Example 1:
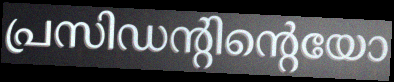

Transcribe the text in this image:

പ്രസിഡന്റിന്റെയോ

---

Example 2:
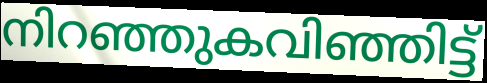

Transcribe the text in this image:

നിറഞ്ഞുകവിഞ്ഞിട്ട്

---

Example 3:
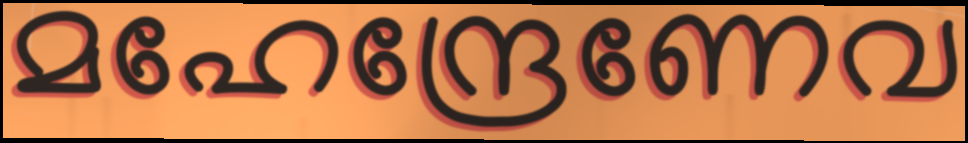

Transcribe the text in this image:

മഹേന്ദ്രേണേവ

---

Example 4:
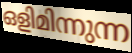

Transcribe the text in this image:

ഒളിമിന്നുന്ന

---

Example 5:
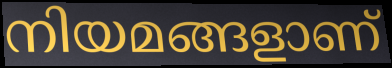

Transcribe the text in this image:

നിയമങ്ങളാണ്